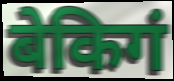
बेकिगं